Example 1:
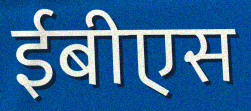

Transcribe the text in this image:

ईबीएस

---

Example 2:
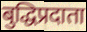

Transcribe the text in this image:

बुद्धिप्रदाता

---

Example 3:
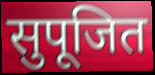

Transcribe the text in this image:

सुपूजित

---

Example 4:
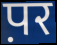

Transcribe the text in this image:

प़र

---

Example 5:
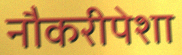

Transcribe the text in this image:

नौकरीपेशा